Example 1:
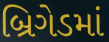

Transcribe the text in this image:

બ્રિગેડમાં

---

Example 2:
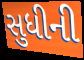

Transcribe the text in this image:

સુધીની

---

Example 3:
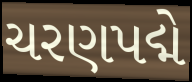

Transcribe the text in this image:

ચરણપદ્મે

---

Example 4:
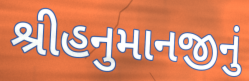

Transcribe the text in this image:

શ્રીહનુમાનજીનું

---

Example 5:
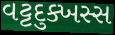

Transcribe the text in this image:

વટ્ટદુક્ખસ્સ